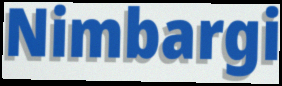
Nimbargi